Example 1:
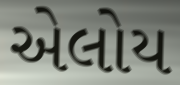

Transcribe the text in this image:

એલોય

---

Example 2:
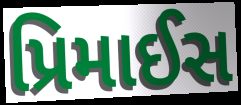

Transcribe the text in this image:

પ્રિમાઈસ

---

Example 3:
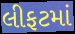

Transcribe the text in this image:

લીફટમાં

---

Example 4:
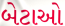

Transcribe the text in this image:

બેટાઓ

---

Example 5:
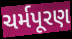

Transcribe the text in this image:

ચર્મપૂરણ